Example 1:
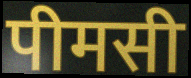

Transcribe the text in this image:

पीमसी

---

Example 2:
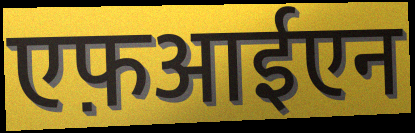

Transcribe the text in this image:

एफ़आईएन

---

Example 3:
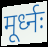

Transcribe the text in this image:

मूर्ध्नः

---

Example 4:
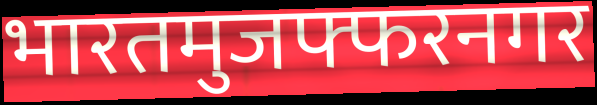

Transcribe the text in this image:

भारतमुजफ्फरनगर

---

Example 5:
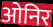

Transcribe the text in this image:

ओनिर